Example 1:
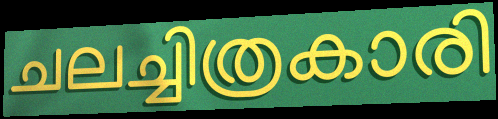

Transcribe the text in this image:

ചലച്ചിത്രകാരി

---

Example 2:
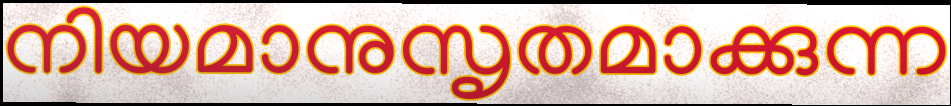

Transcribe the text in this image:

നിയമാനുസൃതമാക്കുന്ന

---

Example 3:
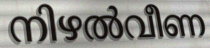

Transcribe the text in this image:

നിഴൽവീണ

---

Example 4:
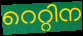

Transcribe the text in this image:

റെറ്റിന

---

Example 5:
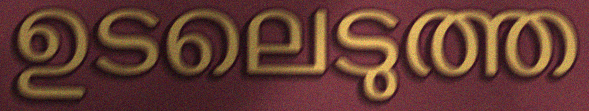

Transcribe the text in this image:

ഉടലെടുത്ത